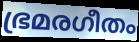
ഭ്രമരഗീതം